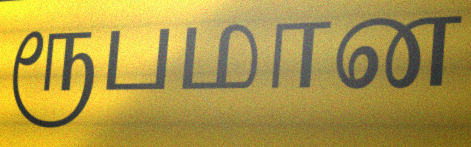
ரூபமான